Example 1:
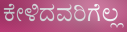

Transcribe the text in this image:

ಕೇಳಿದವರಿಗೆಲ್ಲ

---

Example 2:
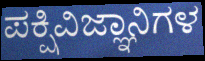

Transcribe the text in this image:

ಪಕ್ಷಿವಿಜ್ಞಾನಿಗಳ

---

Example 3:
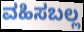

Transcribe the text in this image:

ವಹಿಸಬಲ್ಲ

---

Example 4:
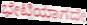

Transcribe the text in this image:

ಭೇಟಿಯಾಗದೇ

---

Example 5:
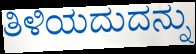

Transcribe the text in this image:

ತಿಳಿಯದುದನ್ನು